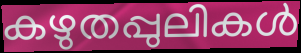
കഴുതപ്പുലികൾ